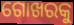
ଗୋଖରକୁ